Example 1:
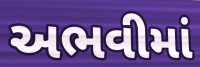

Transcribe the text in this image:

અભવીમાં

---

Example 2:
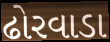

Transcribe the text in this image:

ઢોરવાડા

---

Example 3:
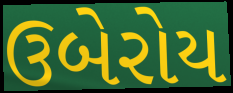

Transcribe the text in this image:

ઉબેરોય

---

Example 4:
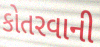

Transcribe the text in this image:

કોતરવાની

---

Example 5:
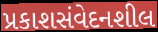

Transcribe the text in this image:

પ્રકાશસંવેદનશીલ